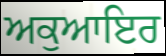
ਅਕੁਆਇਰ